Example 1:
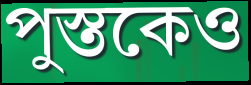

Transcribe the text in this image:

পুস্তকেও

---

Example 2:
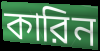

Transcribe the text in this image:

কারিন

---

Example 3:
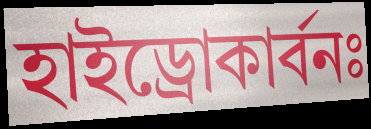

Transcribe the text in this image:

হাইড্রোকার্বনঃ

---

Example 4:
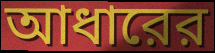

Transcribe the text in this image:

আধারের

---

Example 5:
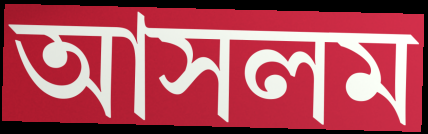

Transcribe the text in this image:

আসলম